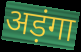
अड़ंगा